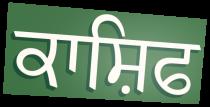
ਕਾਸ਼ਿਫ